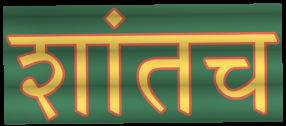
शांतच